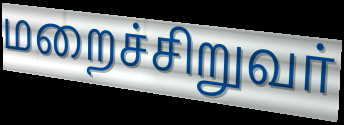
மறைச்சிறுவர்